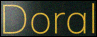
Doral